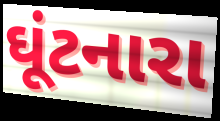
ઘૂંટનારા